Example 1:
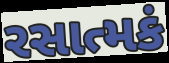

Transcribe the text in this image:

રસાત્મકં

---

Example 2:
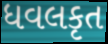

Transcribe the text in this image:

ધવલકૃત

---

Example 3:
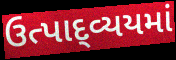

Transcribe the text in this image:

ઉત્પાદ્વ્યયમાં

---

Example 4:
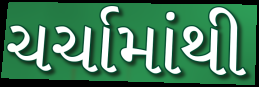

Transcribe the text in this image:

ચર્ચામાંથી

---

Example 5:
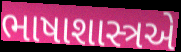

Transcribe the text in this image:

ભાષાશાસ્ત્રએ